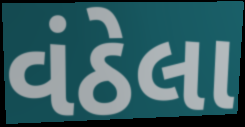
વંઠેલા